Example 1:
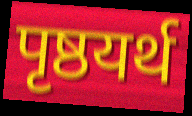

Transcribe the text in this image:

पृष्ठयर्थ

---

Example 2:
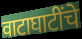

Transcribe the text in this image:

वाटाघाटींचे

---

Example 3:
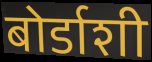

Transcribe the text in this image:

बोर्डाशी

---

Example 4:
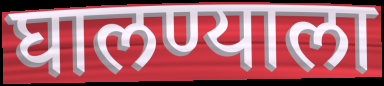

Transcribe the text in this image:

घालण्याला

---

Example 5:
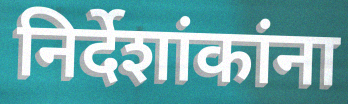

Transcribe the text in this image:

निर्देशांकांना